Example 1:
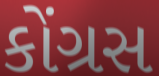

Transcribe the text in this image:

કોંગ્રસ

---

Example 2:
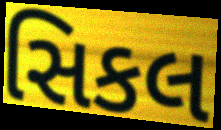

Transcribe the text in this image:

સિકલ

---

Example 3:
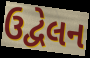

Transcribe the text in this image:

ઉદ્વેલન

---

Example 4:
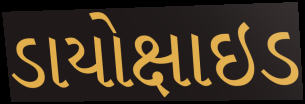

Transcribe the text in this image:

ડાયોક્ષાઇડ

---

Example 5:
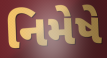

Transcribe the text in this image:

નિમેષે